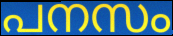
പനസം